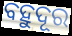
ବହୁଦୂର